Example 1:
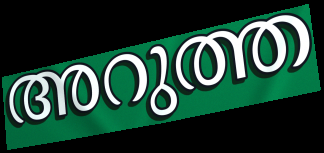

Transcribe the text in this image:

അറുത്ത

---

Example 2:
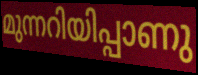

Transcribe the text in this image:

മുന്നറിയിപ്പാണു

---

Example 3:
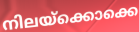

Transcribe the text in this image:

നിലയ്ക്കൊക്കെ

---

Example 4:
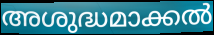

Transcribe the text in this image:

അശുദ്ധമാക്കൽ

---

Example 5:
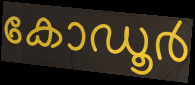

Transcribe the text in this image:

കോഡൂർ